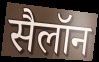
सैलॉन